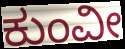
ಕುಂವೀ